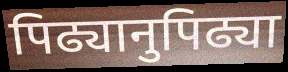
पिढ्यानुपिढ्या